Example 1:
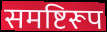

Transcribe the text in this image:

समष्टिरूप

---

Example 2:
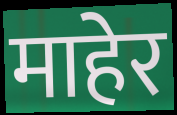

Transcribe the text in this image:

माहेर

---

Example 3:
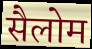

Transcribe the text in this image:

सैलोम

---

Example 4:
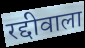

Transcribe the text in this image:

रद्दीवाला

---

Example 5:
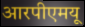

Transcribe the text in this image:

आरपीएमयू